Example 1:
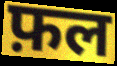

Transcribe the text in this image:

फ़ल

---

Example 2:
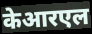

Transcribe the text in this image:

केआरएल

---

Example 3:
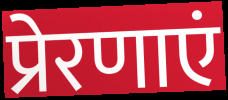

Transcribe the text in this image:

प्रेरणाएं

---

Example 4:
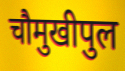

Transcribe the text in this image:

चौमुखीपुल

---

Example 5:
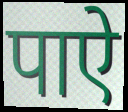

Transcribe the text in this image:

पाऐ